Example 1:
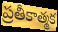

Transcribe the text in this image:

ప్రతీకాత్మక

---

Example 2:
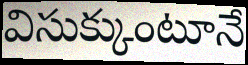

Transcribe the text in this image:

విసుక్కుంటూనే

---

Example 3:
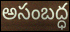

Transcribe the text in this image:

అసంబద్ధ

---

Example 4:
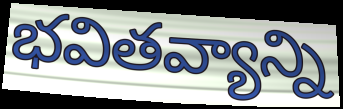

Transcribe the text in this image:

భవితవ్యాన్ని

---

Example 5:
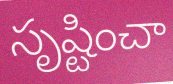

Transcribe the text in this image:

సృష్టించా